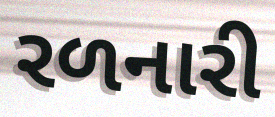
રળનારી